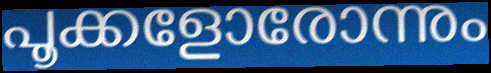
പൂക്കളോരോന്നും